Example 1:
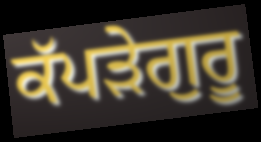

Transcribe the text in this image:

ਕੱਪੜੇਗੁਰੂ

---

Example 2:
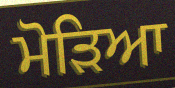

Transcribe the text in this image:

ਮੋੜਿਆ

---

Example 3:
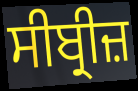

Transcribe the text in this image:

ਸੀਬ੍ਰੀਜ਼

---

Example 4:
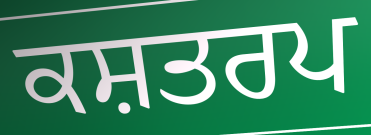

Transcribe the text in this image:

ਕਸ਼ਤਰਪ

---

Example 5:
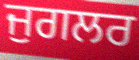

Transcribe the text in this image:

ਜੁਗਲਰ